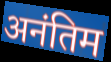
अनंतिम